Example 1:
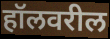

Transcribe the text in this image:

हॉलवरील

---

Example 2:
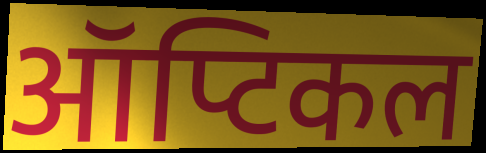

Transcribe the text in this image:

ऑप्टिकल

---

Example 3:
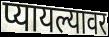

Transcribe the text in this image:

प्यायल्यावर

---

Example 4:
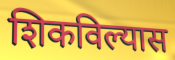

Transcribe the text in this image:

शिकविल्यास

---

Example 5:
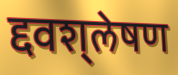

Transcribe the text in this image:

द्दवश्लेषण